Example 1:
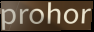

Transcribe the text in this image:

prohor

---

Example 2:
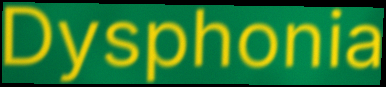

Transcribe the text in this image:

Dysphonia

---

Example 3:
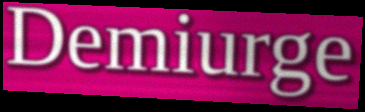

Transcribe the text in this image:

Demiurge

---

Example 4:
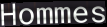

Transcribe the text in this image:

Hommes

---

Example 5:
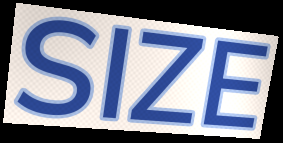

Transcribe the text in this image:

SIZE